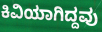
ಕಿವಿಯಾಗಿದ್ದವು